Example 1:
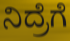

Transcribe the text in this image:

ನಿದ್ರೆಗೆ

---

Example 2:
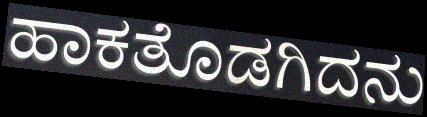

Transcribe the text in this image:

ಹಾಕತೊಡಗಿದನು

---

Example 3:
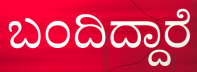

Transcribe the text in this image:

ಬಂದಿದ್ದಾರೆ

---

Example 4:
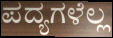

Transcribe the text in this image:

ಪದ್ಯಗಳೆಲ್ಲ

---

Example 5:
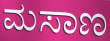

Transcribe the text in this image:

ಮಸಾಣ